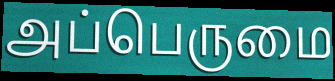
அப்பெருமை